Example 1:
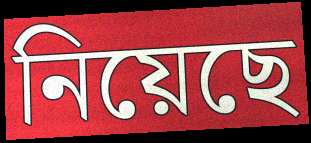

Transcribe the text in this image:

নিয়েছে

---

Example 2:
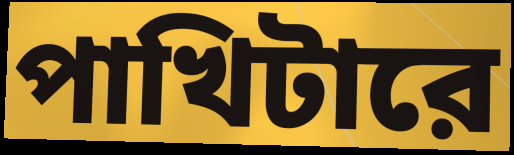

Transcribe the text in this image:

পাখিটারে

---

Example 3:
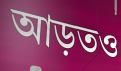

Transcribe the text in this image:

আড়তও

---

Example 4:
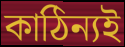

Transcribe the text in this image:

কাঠিন্যই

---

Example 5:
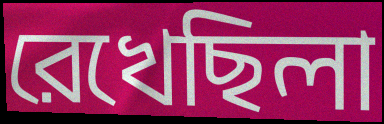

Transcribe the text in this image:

রেখেছিলা